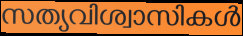
സത്യവിശ്വാസികൾ